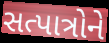
સત્પાત્રોને